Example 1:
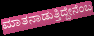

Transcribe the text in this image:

ಮಾತನಾಡುತ್ತಿದ್ದೇನೆಂಬ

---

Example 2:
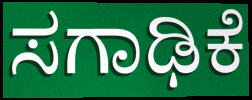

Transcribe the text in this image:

ಸಗಾಢಿಕೆ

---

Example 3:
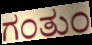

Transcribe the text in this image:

ಗಂತುಂ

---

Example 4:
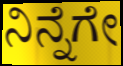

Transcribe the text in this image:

ನಿನ್ನೆಗೇ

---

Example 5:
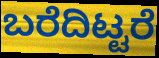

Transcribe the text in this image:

ಬರೆದಿಟ್ಟರೆ